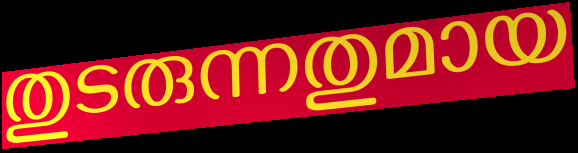
തുടരുന്നതുമായ